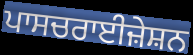
ਪਾਸਚਰਾਈਜ਼ੇਸ਼ਨ